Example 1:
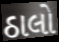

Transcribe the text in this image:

ઠાલો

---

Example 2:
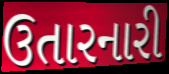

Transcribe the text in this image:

ઉતારનારી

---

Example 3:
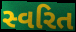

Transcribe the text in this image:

સ્વરિત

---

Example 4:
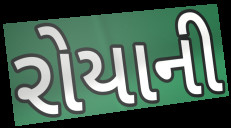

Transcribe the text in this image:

રોયાની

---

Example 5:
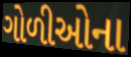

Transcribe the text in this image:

ગોળીઓના